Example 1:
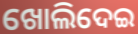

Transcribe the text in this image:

ଖୋଲିଦେଇ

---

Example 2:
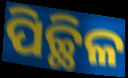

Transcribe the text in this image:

ପିଚ୍ଛିଳ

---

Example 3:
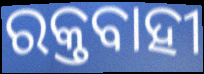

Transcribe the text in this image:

ରକ୍ତବାହୀ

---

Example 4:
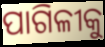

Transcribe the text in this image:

ପାଗିଳୀକୁ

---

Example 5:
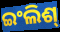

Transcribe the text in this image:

ଇଂଲିଶ୍